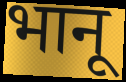
भानू